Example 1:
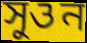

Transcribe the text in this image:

সুওন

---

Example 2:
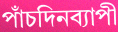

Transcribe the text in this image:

পাঁচদিনব্যাপী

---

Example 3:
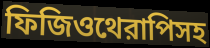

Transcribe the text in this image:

ফিজিওথেরাপিসহ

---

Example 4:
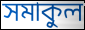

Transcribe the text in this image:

সমাকুল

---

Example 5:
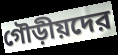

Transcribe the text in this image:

গৌড়ীয়দের